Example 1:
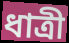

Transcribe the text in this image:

ধাত্ৰী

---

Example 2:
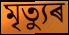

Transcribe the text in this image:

মৃত্যুৰ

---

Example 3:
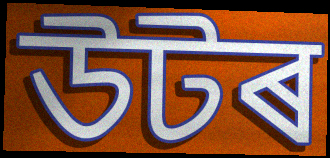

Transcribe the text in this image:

উটৰ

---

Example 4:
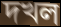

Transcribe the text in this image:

দখল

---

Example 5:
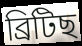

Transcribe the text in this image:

ব্ৰিটিছ